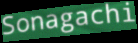
Sonagachi